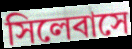
সিলেবাসে